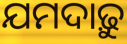
ଯମଦାଢ଼ୁ